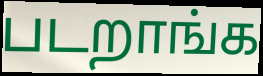
படறாங்க